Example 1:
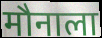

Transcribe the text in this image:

मौनाला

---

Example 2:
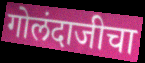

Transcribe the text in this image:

गोलंदाजीचा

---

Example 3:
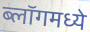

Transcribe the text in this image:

ब्लॉगमध्ये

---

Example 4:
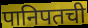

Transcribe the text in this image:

पानिपतची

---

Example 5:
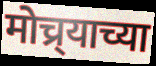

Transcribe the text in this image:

मोच्र्याच्या